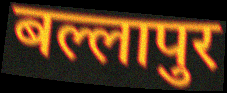
बल्लापुर